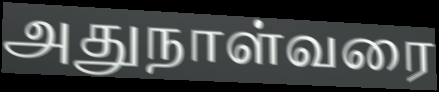
அதுநாள்வரை